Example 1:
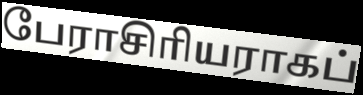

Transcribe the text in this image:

பேராசிரியராகப்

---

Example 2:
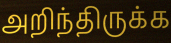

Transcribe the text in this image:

அறிந்திருக்க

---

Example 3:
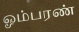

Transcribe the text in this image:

ஓம்பரண்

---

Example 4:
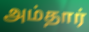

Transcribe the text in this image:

அம்தார்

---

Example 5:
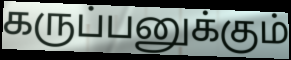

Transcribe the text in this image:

கருப்பனுக்கும்